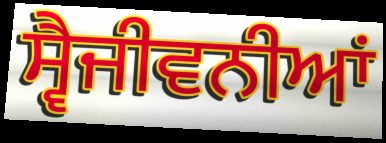
ਸ੍ਵੈਜੀਵਨੀਆਂ